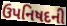
ઉપનિષદની